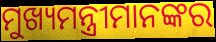
ମୁଖ୍ୟମନ୍ତ୍ରୀମାନଙ୍କର